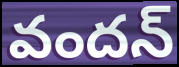
వందన్